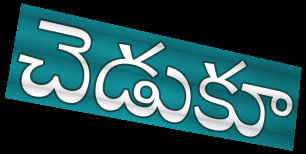
చెడుకూ